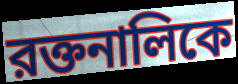
রক্তনালিকে